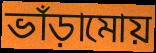
ভাঁড়ামোয়